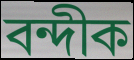
বন্দীক